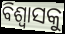
ବିଶ୍ୱାସକୁ